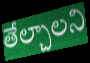
తేల్చాలని